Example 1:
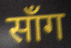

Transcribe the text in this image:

साँग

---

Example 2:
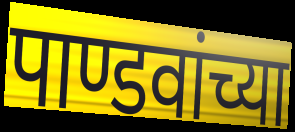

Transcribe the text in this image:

पाण्डवांच्या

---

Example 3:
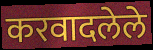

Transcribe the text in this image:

करवादलेले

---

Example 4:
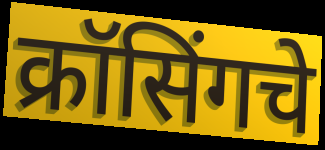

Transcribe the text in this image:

क्रॉसिंगचे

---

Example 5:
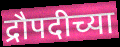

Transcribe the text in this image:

द्रौपदीच्या